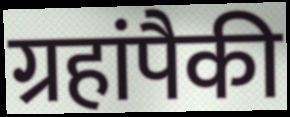
ग्रहांपैकी